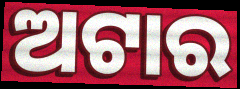
ଅଟାର